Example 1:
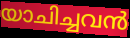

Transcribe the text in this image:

യാചിച്ചവൻ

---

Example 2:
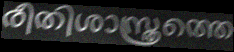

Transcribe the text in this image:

രീതിശാസ്ത്രത്തെ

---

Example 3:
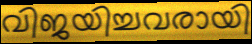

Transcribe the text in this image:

വിജയിച്ചവരായി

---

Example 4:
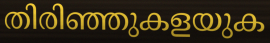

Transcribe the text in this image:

തിരിഞ്ഞുകളയുക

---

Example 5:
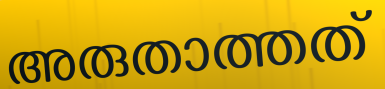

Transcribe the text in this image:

അരുതാത്തത്